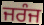
ਜਰੰਜ